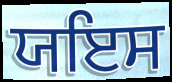
ਯਇਸ